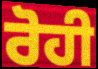
ਰੋਹੀ